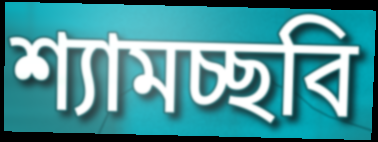
শ্যামচ্ছবি